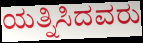
ಯತ್ನಿಸಿದವರು